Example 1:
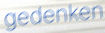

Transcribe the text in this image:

gedenken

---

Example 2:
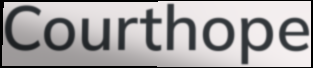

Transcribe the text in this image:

Courthope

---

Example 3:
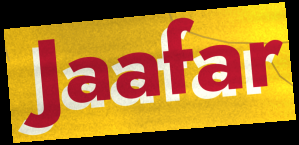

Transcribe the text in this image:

Jaafar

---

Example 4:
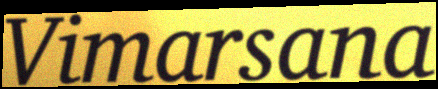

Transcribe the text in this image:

Vimarsana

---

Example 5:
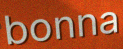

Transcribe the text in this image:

bonna